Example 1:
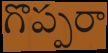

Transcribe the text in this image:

గొప్పరా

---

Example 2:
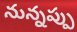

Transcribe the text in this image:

నున్నప్పు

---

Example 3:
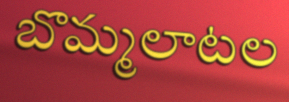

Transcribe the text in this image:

బొమ్మలాటల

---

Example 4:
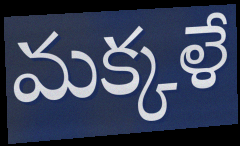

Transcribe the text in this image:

మక్కళే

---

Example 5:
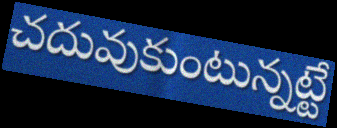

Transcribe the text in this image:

చదువుకుంటున్నట్టే